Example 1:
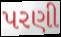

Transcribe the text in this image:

પરણી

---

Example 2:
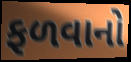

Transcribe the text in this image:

ફળવાનો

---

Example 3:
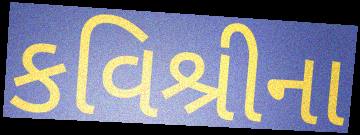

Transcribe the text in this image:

કવિશ્રીના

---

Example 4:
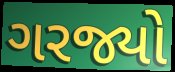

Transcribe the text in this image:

ગરજ્યો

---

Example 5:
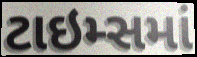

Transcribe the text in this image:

ટાઇમ્સમાં